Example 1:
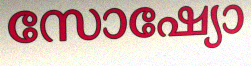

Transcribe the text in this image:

സോഷ്യോ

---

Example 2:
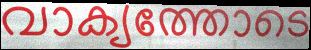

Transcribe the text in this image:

വാക്യത്തോടെ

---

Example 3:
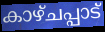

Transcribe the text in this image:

കാഴ്ചപ്പാട്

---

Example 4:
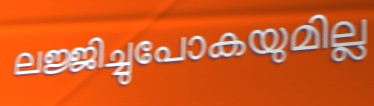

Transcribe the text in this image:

ലജ്ജിച്ചുപോകയുമില്ല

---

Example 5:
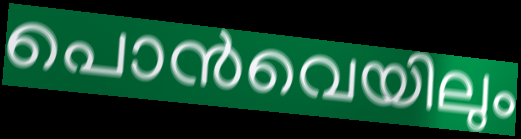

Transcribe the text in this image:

പൊൻവെയിലും